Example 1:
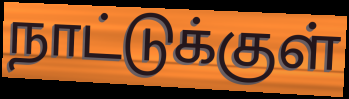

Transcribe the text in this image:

நாட்டுக்குள்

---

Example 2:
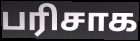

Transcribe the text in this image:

பரிசாக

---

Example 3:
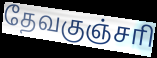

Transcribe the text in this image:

தேவகுஞ்சரி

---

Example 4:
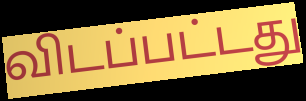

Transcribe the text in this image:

விடப்பட்டது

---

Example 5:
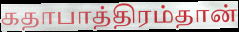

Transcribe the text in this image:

கதாபாத்திரம்தான்